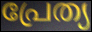
പ്രേത്യ